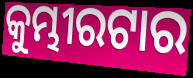
କୁମ୍ଭୀରଟାର